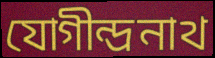
যোগীন্দ্রনাথ